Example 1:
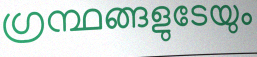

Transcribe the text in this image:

ഗ്രന്ഥങ്ങളുടേയും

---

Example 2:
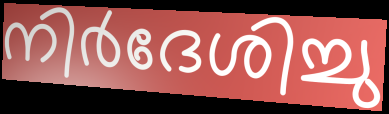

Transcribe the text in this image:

നിർദേശിച്ചു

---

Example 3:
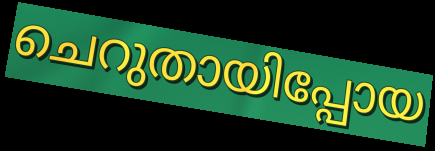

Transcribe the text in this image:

ചെറുതായിപ്പോയ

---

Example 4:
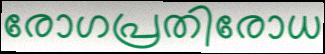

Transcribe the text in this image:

രോഗപ്രതിരോധ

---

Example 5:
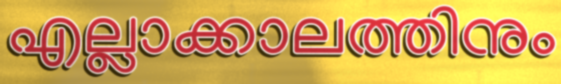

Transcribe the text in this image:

എല്ലാക്കാലത്തിനും